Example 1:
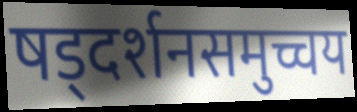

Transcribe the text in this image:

षड्दर्शनसमुच्चय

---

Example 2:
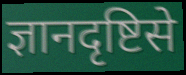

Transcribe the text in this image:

ज्ञानदृष्टिसे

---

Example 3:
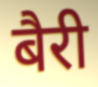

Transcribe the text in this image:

बैरी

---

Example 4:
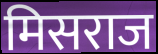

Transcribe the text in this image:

मिसराज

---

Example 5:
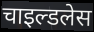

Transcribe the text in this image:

चाइल्डलेस